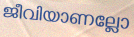
ജീവിയാണല്ലോ